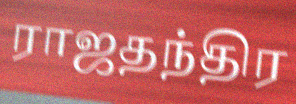
ராஜதந்திர